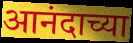
आनंदाच्या